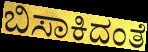
ಬಿಸಾಕಿದಂತೆ